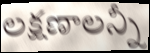
లక్షణాలన్నీ